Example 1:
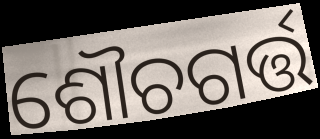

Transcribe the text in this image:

ଶୌଚଗର୍ତ୍ତ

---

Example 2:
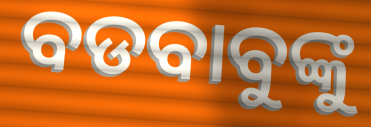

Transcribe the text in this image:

ବଡବାବୁଙ୍କୁ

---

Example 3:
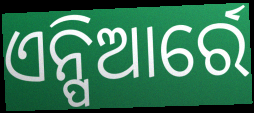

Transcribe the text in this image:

ଏନ୍ପିଆର୍ରେ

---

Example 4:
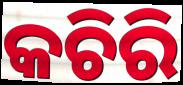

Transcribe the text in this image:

କଚିରି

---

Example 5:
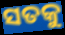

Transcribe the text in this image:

ସତକୁ